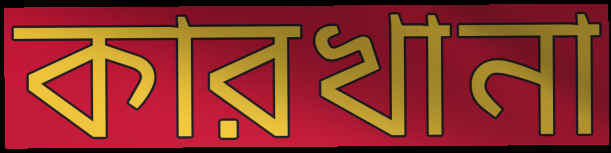
কারখানা